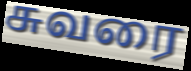
சுவரை